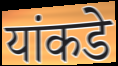
यांकडे